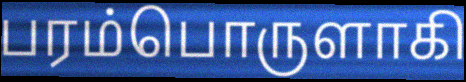
பரம்பொருளாகி